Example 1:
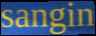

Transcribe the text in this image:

sangin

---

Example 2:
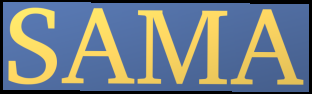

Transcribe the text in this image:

SAMA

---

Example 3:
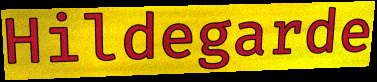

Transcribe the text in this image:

Hildegarde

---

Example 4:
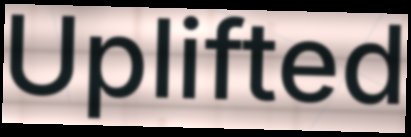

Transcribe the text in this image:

Uplifted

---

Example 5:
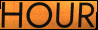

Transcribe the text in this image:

HOUR